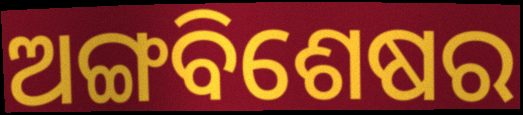
ଅଙ୍ଗବିଶେଷର